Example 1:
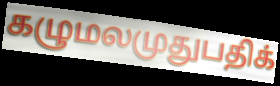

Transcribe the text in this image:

கழுமலமுதுபதிக்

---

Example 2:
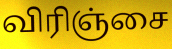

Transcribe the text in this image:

விரிஞ்சை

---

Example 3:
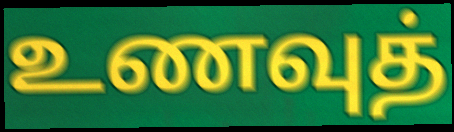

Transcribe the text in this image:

உணவுத்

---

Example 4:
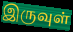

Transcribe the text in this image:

இருவுள்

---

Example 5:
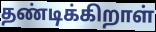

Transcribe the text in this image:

தண்டிக்கிறாள்